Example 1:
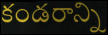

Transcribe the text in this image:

కండరాన్ని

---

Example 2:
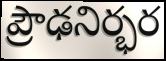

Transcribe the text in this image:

ప్రౌఢనిర్భర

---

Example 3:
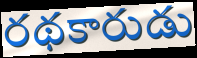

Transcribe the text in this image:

రథకారుడు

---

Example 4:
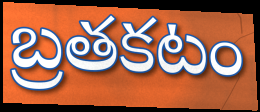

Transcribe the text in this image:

బ్రతకటం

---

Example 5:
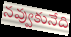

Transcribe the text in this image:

నవ్వుకునేది